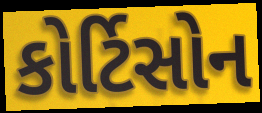
કોર્ટિસોન